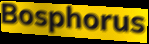
Bosphorus